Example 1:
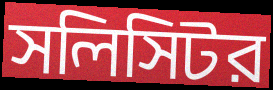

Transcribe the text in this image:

সলিসিটর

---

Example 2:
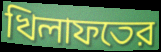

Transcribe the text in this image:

খিলাফতের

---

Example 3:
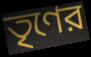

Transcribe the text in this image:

তৃণের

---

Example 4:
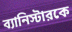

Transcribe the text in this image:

ব্যানিস্টারকে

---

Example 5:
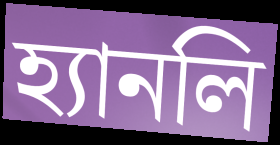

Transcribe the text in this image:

হ্যানলি